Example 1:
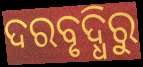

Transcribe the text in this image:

ଦରବୃଦ୍ଧିରୁ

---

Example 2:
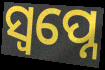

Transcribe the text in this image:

ସ୍ବପ୍ନେ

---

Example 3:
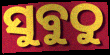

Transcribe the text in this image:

ସୁବୁଠୁ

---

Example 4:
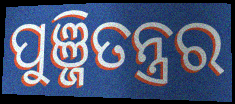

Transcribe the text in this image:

ପୁଞ୍ଜିତନ୍ତ୍ରର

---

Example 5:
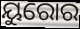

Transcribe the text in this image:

ୟୁରୋର